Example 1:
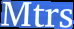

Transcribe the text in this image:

Mtrs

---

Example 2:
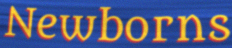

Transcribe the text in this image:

Newborns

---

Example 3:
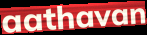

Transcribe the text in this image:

aathavan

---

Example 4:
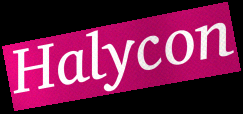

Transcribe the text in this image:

Halycon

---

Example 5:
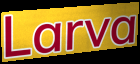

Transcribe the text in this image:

Larva